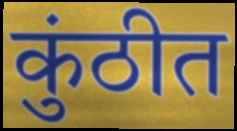
कुंठीत